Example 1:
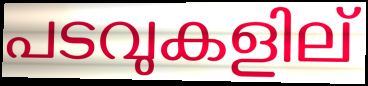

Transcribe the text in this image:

പടവുകളില്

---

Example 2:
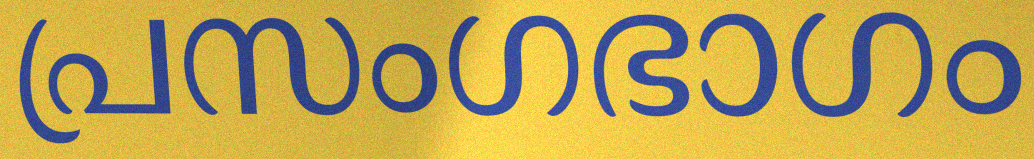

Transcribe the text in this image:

പ്രസംഗഭാഗം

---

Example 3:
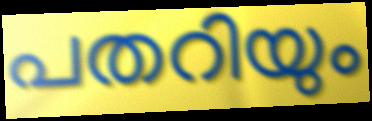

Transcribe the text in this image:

പതറിയും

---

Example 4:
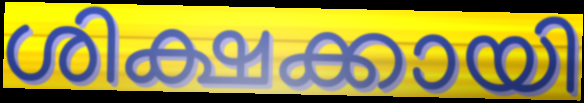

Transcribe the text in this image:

ശിക്ഷക്കായി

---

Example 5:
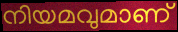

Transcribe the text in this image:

നിയമവുമാണ്